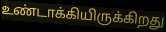
உண்டாக்கியிருக்கிறது